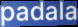
padala